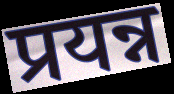
प्रयन्न